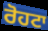
ਰੋਹਟਾ